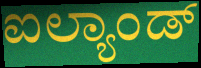
ಐಲ್ಯಾಂಡ್